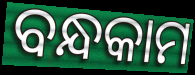
ବନ୍ଧକାମ